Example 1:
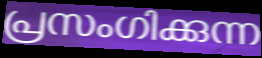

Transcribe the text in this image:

പ്രസംഗിക്കുന്ന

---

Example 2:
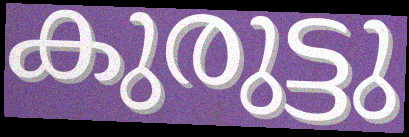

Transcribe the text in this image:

കുരുട്ടു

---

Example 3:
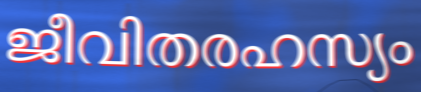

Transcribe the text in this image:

ജീവിതരഹസ്യം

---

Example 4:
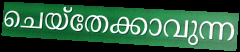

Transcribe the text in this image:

ചെയ്തേക്കാവുന്ന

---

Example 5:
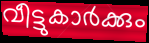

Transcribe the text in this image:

വീട്ടുകാർക്കും